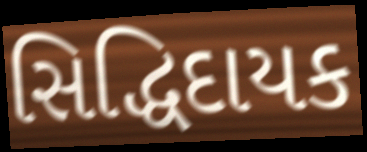
સિદ્ધિદાયક